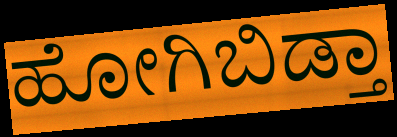
ಹೋಗಿಬಿಡ್ತಾ